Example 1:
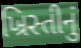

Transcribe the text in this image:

ખ્રિસ્તીનું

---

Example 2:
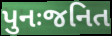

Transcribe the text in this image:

પુનઃજનિત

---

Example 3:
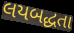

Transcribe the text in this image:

લયબદ્ધતા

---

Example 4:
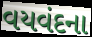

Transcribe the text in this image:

વયવંદના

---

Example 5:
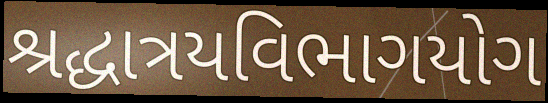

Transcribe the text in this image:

શ્રદ્ધાત્રયવિભાગયોગ